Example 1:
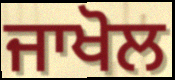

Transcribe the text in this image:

ਜਾਖੋਲ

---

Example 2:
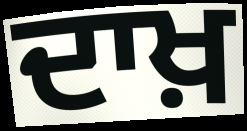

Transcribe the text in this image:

ਦਾਖ਼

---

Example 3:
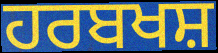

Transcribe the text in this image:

ਹਰਬਖਸ਼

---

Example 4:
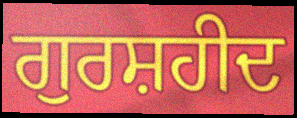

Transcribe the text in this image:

ਗੁਰਸ਼ਹੀਦ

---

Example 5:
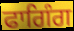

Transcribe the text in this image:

ਫਾਗਿੰਗ